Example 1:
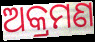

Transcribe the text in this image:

ଅକ୍ରମଣ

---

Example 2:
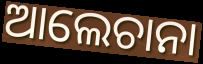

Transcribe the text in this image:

ଆଲେଚାନା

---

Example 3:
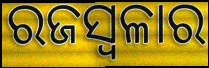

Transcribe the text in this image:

ରଜସ୍ୱଳାର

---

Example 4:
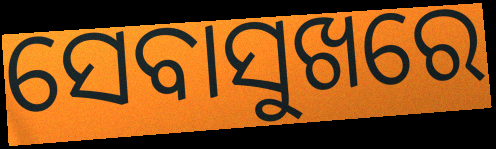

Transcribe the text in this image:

ସେବାସୁଖରେ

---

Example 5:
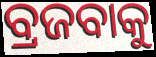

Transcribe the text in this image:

ବ୍ରଜବାକୁ